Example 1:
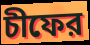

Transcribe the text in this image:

চীফের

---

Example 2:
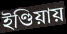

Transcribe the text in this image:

ইণ্ডিয়ায়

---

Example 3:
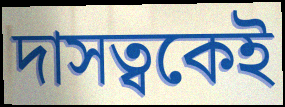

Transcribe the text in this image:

দাসত্বকেই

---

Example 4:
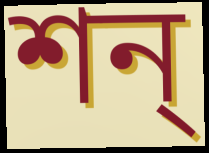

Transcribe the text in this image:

শন্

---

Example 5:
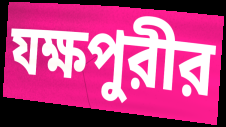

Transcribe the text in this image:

যক্ষপুরীর